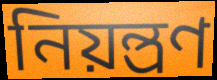
নিয়ন্ত্রণ